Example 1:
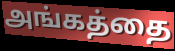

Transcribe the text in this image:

அங்கத்தை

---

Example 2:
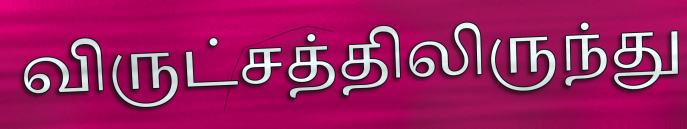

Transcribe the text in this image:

விருட்சத்திலிருந்து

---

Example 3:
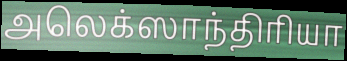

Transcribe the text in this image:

அலெக்ஸாந்திரியா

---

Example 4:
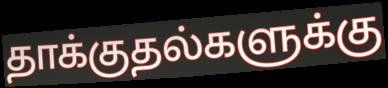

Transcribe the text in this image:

தாக்குதல்களுக்கு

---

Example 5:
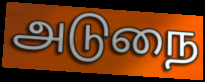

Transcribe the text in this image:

அடுநை